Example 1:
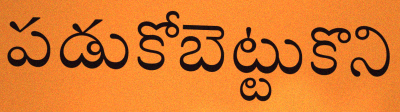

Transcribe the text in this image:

పడుకోబెట్టుకొని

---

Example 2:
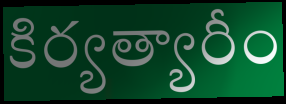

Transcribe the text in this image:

కిర్యత్యారీం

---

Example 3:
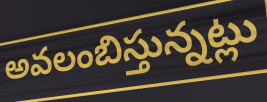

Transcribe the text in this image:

అవలంబిస్తున్నట్లు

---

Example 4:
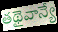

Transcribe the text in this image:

తథైవాన్యే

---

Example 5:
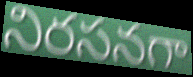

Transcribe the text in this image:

నిరసనగా